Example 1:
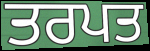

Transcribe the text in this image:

ਤਰਪਤ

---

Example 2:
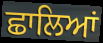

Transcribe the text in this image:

ਛਾਲਿਆਂ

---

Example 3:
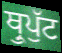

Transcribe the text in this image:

ਥ੍ਰੁਪੁੱਟ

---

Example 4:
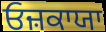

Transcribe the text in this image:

ਓਜ਼ਕਾਯਾ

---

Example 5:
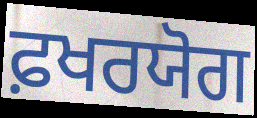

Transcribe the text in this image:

ਫ਼ਖਰਯੋਗ